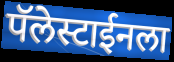
पॅलेस्टाईनला